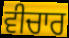
ਵੀਚਾਰ